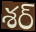
శర్